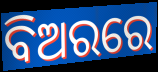
ବିଅରରେ